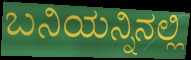
ಬನಿಯನ್ನಿನಲ್ಲಿ